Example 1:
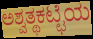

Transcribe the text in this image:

ಅಶ್ವತ್ಥಕಟ್ಟೆಯ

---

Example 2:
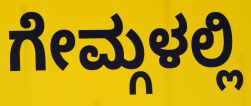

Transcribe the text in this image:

ಗೇಮ್ಗಳಲ್ಲಿ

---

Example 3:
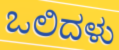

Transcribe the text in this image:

ಒಲಿದಳು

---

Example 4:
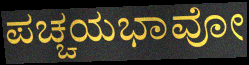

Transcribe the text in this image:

ಪಚ್ಚಯಭಾವೋ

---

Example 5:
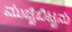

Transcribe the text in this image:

ಮುಚ್ಚಿಬಿಟ್ಟನು